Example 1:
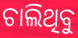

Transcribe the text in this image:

ଚାଲିଥିବୁ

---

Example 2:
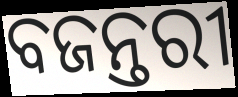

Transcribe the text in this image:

ବଜନ୍ତରୀ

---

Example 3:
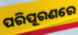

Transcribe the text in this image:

ପରିପୂରଣରେ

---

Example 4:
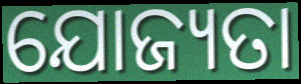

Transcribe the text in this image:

ଯୋଜ୍ୟତା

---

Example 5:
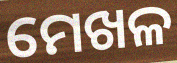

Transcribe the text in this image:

ମେଖଳ